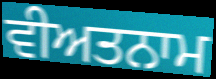
ਵੀਅਤਨਾਮ